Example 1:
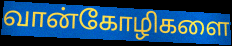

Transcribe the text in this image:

வான்கோழிகளை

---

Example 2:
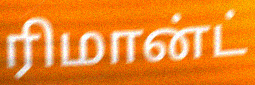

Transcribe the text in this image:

ரிமான்ட்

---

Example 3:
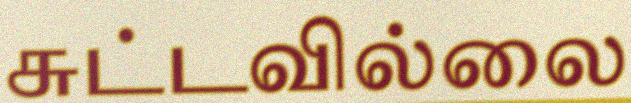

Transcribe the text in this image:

சுட்டவில்லை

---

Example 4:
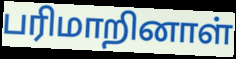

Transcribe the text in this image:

பரிமாறினாள்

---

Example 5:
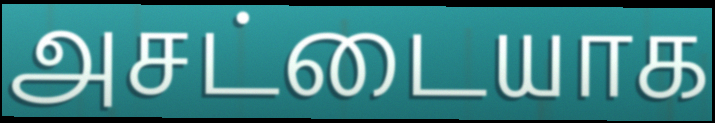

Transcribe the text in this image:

அசட்டையாக